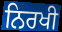
ਨਿਰਖੀ